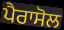
ਪੈਰਾਸੋਲ